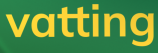
vatting